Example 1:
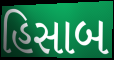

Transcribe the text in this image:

હિસાબ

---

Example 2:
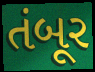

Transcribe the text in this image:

તંબૂર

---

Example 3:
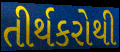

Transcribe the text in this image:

તીર્થકરોથી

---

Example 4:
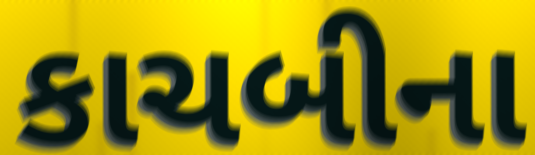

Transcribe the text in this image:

કાચબીના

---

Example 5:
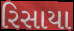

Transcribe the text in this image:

રિસાયા